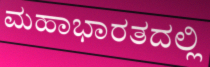
ಮಹಾಭಾರತದಲ್ಲಿ